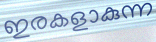
ഇരകളാകുന്ന